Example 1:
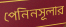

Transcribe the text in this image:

পেনিনসূলার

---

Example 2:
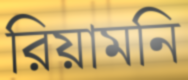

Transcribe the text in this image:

রিয়ামনি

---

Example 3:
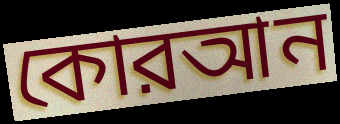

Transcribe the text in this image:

কোরআন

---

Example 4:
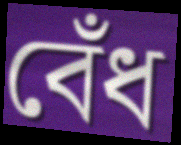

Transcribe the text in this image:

বেঁধ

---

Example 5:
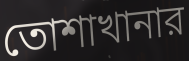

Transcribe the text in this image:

তোশাখানার